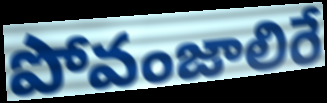
పోవంజాలిరే